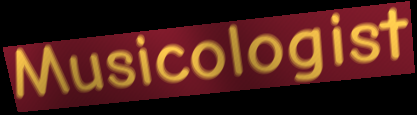
Musicologist